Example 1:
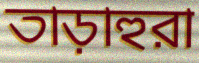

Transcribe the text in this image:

তাড়াহুরা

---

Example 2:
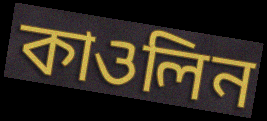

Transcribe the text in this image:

কাওলিন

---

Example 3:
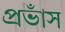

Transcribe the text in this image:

প্রভাঁস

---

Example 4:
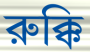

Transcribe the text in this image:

রুক্কি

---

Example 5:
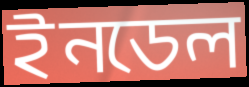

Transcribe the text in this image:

ইনডেল